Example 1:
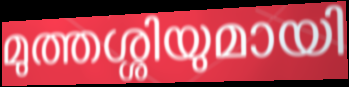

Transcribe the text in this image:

മുത്തശ്ശിയുമായി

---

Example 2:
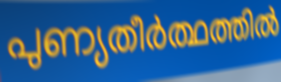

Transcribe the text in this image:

പുണ്യതീർത്ഥത്തിൽ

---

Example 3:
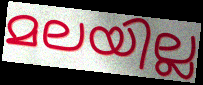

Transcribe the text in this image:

മലയില്ല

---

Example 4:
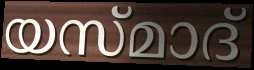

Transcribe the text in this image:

യസ്മാദ്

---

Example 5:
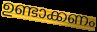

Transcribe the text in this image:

ഉണ്ടാക്കണം